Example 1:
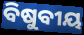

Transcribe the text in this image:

ବିଷୁବୀୟ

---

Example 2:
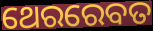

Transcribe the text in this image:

ଥେରରେବତ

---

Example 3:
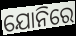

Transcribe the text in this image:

ଯୋନିରେ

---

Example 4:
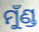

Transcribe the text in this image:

ମୁଁଣ୍ଡ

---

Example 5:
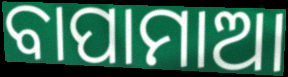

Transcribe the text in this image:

ବାପାମାଆ